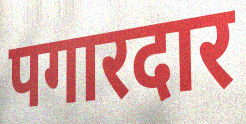
पगारदार